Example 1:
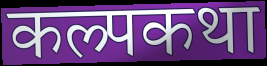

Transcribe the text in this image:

कल्पकथा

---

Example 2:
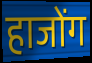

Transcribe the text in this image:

हाजोंग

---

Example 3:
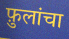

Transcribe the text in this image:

फ़ुलांचा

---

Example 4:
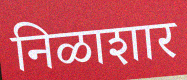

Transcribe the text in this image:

निळाशार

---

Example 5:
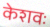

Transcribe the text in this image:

केशवः